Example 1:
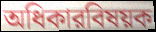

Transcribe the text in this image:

অধিকারবিষয়ক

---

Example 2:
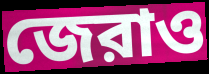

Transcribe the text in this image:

জেরাও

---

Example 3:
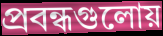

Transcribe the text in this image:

প্রবন্ধগুলোয়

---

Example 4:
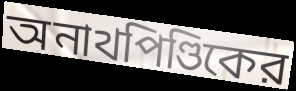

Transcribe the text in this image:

অনাথপিণ্ডিকের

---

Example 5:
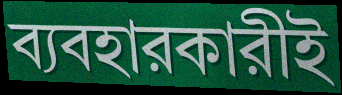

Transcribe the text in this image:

ব্যবহারকারীই